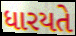
ધારયતે